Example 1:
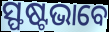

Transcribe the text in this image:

ସ୍ଫଷ୍ଟଭାବେ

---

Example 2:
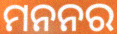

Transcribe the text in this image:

ମନନର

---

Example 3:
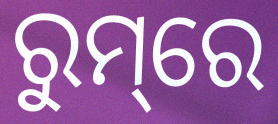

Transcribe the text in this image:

ରୁମ୍‌ରେ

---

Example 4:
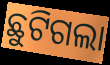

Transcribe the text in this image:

ଛୁଟିଗଲା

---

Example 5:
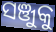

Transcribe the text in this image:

ସଞ୍ଜୁକୁ